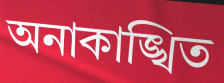
অনাকাঙ্খিত